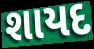
શાયદ